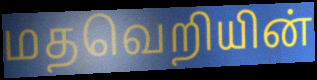
மதவெறியின்